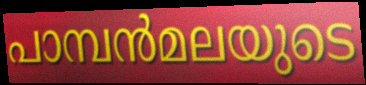
പാമ്പൻമലയുടെ